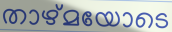
താഴ്മയോടെ